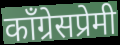
काँग्रेसप्रेमी